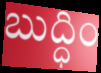
బుద్ధిం